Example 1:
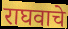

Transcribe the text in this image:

राघवाचे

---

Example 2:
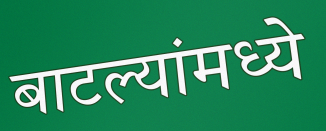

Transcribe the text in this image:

बाटल्यांमध्ये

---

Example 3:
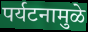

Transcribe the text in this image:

पर्यटनामुळे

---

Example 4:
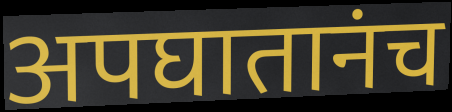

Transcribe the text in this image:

अपघातानंच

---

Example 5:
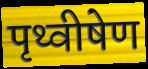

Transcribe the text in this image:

पृथ्वीषेण